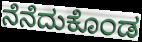
ನೆನೆದುಕೊಂಡ